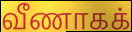
வீணாகக்